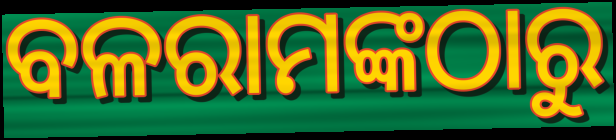
ବଳରାମଙ୍କଠାରୁ